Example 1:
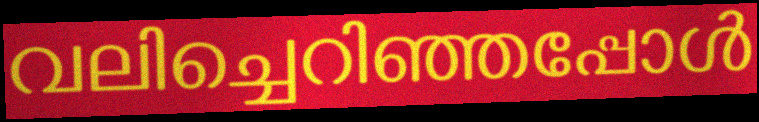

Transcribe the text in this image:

വലിച്ചെറിഞ്ഞപ്പോൾ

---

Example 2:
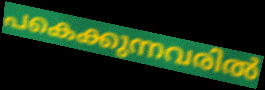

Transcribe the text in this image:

പകെക്കുന്നവരിൽ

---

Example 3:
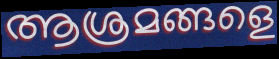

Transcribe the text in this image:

ആശ്രമങ്ങളെ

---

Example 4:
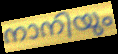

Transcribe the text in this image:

നാനിയും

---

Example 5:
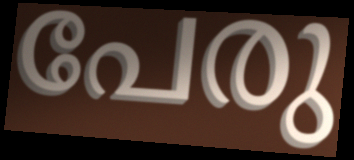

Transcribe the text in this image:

പേരു